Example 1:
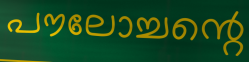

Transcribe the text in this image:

പൗലോച്ചന്റെ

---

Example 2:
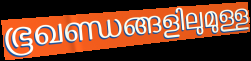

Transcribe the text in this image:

ഭൂഖണ്ഡങ്ങളിലുമുള്ള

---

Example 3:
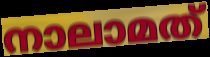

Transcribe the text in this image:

നാലാമത്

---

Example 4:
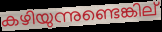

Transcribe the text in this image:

കഴിയുന്നുണ്ടെങ്കില്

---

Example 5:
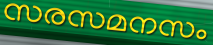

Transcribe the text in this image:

സരസമനസം